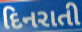
દિનરાતી